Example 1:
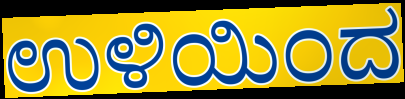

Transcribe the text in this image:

ಉಳಿಯಿಂದ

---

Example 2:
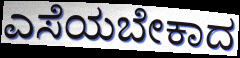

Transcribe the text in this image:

ಎಸೆಯಬೇಕಾದ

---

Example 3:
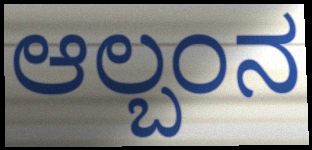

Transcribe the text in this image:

ಆಲ್ಬಂನ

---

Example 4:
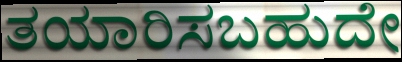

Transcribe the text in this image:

ತಯಾರಿಸಬಹುದೇ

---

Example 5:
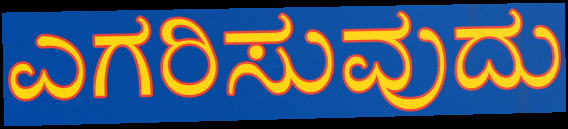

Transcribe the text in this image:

ಎಗರಿಸುವುದು